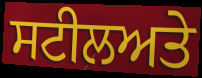
ਸਟੀਲਅਤੇ